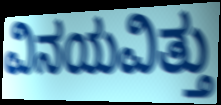
ವಿನಯವಿತ್ತು